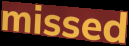
missed